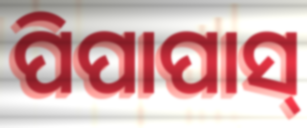
ପିପାପାସ୍